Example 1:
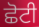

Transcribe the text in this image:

ਛੋਟੀ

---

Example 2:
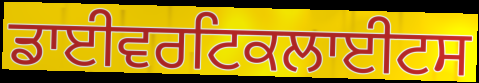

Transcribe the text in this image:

ਡਾਈਵਰਟਿਕਲਾਈਟਸ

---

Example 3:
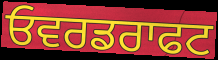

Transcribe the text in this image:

ਓਵਰਡਰਾਫਟ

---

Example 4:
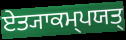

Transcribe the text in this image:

ਏਤ੍ਯਾਕਮ੍ਪਯਤ੍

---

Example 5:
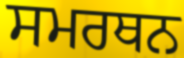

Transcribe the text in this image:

ਸਮਰਥਨ